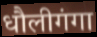
धौलीगंगा